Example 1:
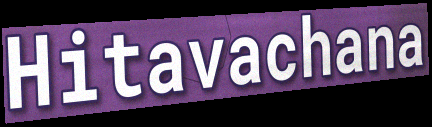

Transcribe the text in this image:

Hitavachana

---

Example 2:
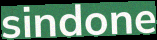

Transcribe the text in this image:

sindone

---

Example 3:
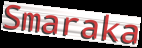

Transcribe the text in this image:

Smaraka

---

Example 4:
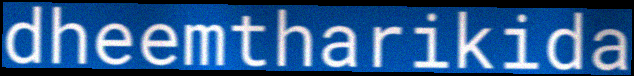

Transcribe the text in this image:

dheemtharikida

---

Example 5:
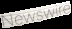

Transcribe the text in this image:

Newswire